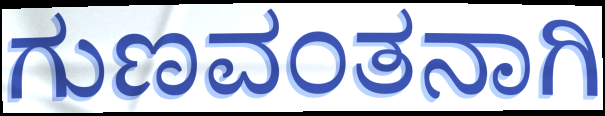
ಗುಣವಂತನಾಗಿ